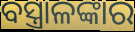
ବସ୍ତ୍ରାଳଙ୍କାର